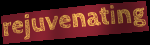
rejuvenating